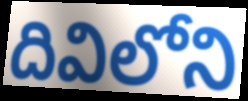
దివిలోని